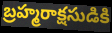
బ్రహ్మరాక్షసుడికి